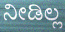
ನೀಡಿಲ್ಲ